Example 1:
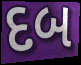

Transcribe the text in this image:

દબ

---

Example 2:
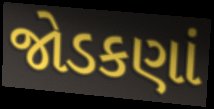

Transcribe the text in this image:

જોડકણાં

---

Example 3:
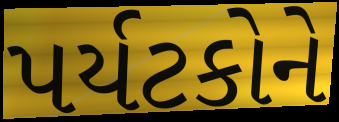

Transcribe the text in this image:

પર્યટકોને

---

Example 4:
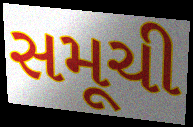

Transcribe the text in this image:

સમૂચી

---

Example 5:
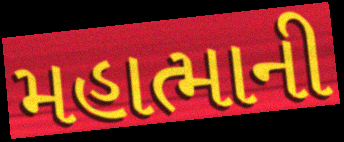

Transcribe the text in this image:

મહાત્માની